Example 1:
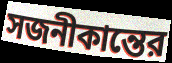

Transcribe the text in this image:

সজনীকান্তের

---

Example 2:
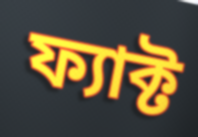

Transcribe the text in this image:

ফ্যাক্ট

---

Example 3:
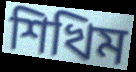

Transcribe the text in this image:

শিখিম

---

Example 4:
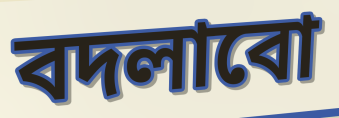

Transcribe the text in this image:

বদলাবো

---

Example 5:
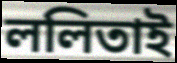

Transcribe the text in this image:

ললিতাই